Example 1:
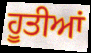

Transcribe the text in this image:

ਹੂਤੀਆਂ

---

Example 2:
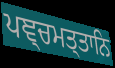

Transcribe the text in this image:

ਪਞ੍ਚਮਤ੍ਤਾਨਿ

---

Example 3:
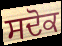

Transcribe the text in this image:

ਸਦੋਕ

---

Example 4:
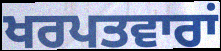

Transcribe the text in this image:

ਖਰਪਤਵਾਰਾਂ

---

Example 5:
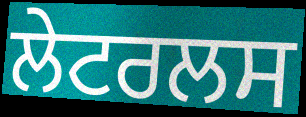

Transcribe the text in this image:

ਲੇਟਰਲਸ